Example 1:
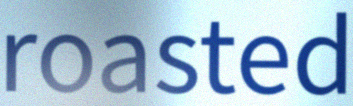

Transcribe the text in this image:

roasted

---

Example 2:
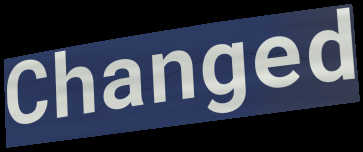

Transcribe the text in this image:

Changed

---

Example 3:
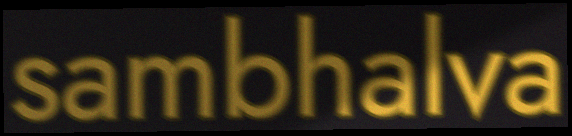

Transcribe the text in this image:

sambhalva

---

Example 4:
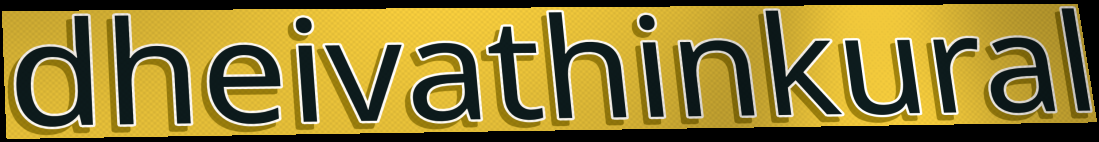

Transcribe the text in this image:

dheivathinkural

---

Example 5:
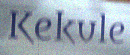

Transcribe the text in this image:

Kekule